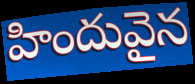
హిందువైన